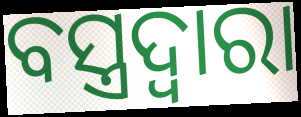
ବସ୍ତ୍ରଦ୍ୱାରା